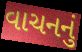
વાચનનું